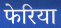
फेरिया